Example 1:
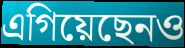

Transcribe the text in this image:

এগিয়েছেনও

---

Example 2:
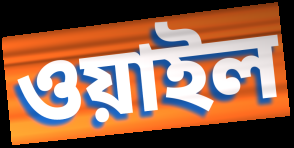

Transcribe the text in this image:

ওয়াইল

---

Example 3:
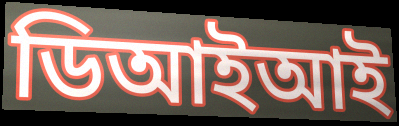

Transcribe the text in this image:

ডিআইআই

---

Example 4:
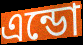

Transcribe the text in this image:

এন্ডো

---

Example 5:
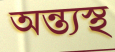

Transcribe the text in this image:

অন্ত্যস্থ